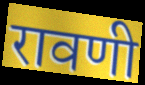
रावणी